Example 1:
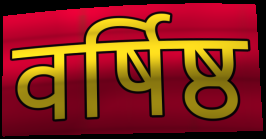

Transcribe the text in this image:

वर्षिष्ठ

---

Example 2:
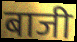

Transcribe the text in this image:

बाजी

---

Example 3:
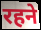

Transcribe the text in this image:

रहने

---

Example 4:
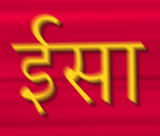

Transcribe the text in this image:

ईसा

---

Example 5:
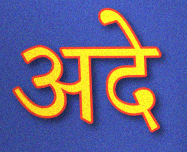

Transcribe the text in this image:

अदे